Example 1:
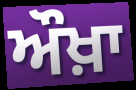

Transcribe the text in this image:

ਔਖ਼ਾ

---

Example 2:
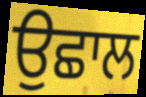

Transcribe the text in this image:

ਉਛਾਲ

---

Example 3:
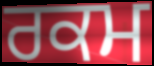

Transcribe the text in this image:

ਰਕਮ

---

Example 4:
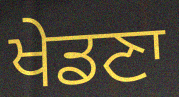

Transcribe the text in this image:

ਖੇਡਣਾ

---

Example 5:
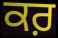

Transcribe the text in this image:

ਕਰ਼